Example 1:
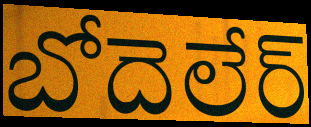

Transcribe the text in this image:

బోదెలేర్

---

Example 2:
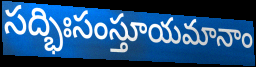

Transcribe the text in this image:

సద్భిఃసంస్తూయమానాం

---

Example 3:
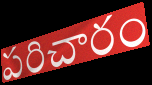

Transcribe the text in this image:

పరిచారం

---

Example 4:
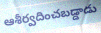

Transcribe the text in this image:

ఆశీర్వదించబడ్డాడు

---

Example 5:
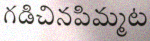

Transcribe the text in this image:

గడిచినపిమ్మట